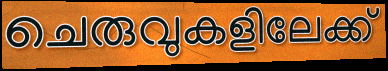
ചെരുവുകളിലേക്ക്